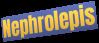
Nephrolepis